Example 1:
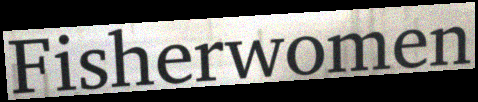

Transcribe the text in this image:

Fisherwomen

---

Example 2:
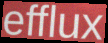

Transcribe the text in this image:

efflux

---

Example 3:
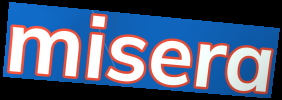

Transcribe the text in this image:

misera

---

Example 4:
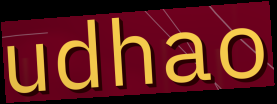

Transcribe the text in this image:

udhao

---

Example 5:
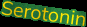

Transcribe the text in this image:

Serotonin